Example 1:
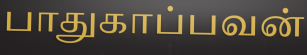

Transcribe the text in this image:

பாதுகாப்பவன்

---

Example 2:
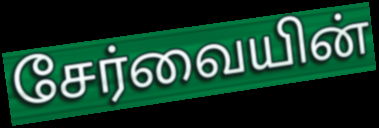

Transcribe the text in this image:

சேர்வையின்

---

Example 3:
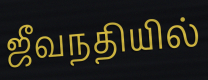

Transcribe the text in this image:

ஜீவநதியில்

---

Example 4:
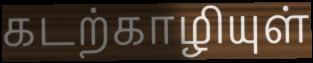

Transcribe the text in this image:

கடற்காழியுள்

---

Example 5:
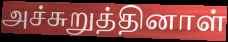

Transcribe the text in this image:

அச்சுறுத்தினாள்